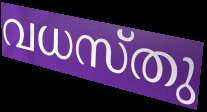
വധസ്തു